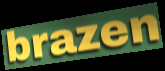
brazen